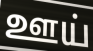
ஊய்